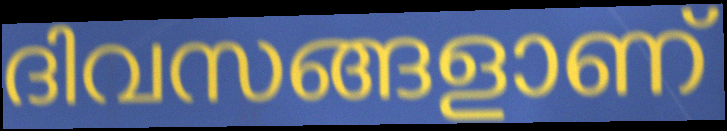
ദിവസങ്ങളാണ്